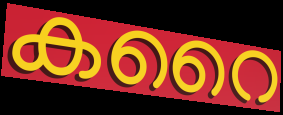
കറൈ